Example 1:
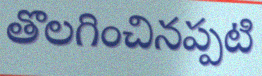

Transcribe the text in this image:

తొలగించినప్పటి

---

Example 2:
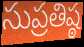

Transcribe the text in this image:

సుప్రతిష్ఠ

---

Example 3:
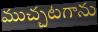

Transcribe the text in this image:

ముచ్చటగాను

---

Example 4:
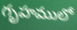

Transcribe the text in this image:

గృహములో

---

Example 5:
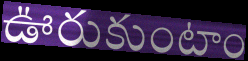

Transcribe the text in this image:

ఊరుకుంటాం